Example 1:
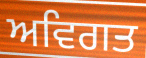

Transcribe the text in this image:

ਅਵਿਗਤ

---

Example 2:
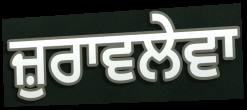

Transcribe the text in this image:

ਜ਼ੁਰਾਵਲੇਵਾ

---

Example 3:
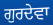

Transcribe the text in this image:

ਗੁਰਦੇਵਾ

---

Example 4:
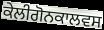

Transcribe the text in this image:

ਕੇਲੀਗੋਨਕਾਲਵਸ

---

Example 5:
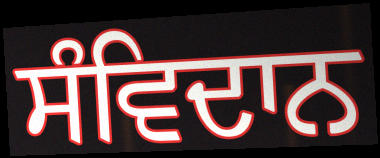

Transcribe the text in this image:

ਸੰਵਿਦਾਨ